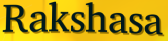
Rakshasa